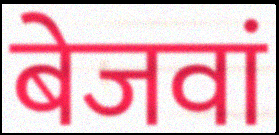
बेजवां